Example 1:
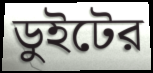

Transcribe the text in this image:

ডুইটের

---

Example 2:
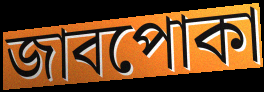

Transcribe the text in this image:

জাবপোকা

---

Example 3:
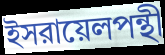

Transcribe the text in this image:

ইসরায়েলপন্থী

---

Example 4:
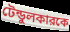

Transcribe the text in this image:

টেন্ডুলকারকে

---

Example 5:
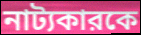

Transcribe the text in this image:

নাট্যকারকে